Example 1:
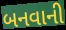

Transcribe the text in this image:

બનવાની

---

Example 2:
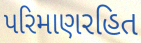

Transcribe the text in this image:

પરિમાણરહિત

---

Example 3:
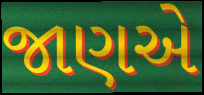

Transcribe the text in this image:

જાણએ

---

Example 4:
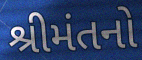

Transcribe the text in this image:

શ્રીમંતનો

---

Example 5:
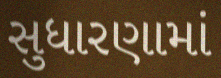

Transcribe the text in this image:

સુધારણામાં